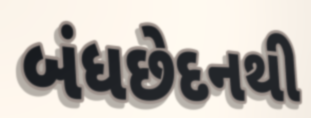
બંધછેદનથી